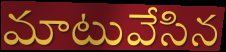
మాటువేసిన